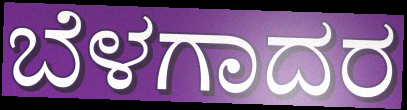
ಬೆಳಗಾದರ